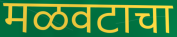
मळवटाचा